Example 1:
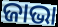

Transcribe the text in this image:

ଜାଭା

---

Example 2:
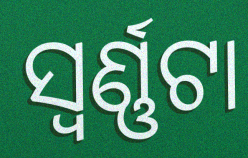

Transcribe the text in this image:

ସ୍ୱର୍ଣ୍ଣଟା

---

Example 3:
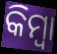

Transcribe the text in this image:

କିମ୍ବା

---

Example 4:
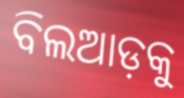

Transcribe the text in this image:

ବିଲଆଡ଼କୁ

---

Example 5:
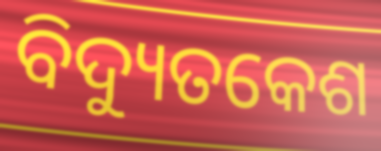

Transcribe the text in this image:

ବିଦ୍ୟୁତକେଶ